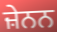
ਜ਼ੇਨਨ